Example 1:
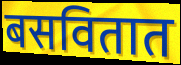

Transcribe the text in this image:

बसवितात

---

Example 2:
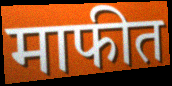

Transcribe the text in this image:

माफीत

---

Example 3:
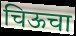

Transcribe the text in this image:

चिऊचा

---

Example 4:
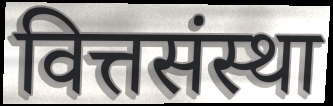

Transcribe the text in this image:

वित्तसंस्था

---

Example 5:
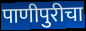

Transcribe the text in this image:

पाणीपुरीचा